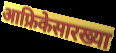
आफ्रिकेसारख्या